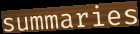
summaries